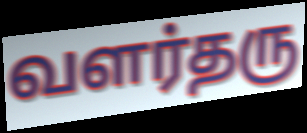
வளர்தரு